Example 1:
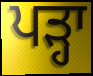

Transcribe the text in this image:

ਪੜ੍ਹਾ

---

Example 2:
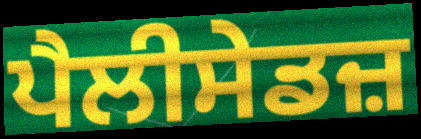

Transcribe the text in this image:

ਪੈਲੀਸੇਡਜ਼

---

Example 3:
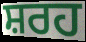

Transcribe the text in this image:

ਸ਼ਰਹ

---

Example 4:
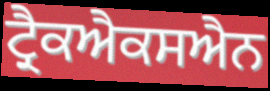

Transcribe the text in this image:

ਟ੍ਰੈਕਐਕਸਐਨ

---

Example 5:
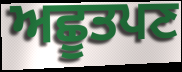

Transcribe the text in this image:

ਅਛੂਤਪਣ